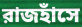
রাজহাঁসে